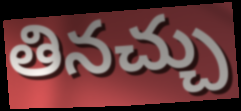
తినచ్చు